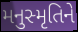
મનુસ્મૃતિને